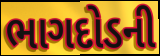
ભાગદોડની